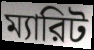
ম্যারিট